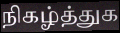
நிகழ்த்துக